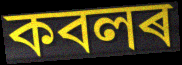
কবলৰ